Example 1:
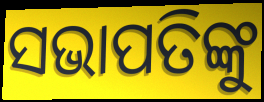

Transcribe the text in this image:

ସଭାପତିଙ୍କୁ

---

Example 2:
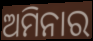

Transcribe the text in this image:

ଅମିନାର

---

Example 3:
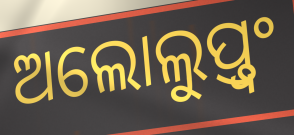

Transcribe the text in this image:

ଅଲୋଲୁପ୍ତ୍ୱଂ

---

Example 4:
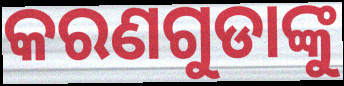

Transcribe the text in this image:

କରଣଗୁଡାଙ୍କୁ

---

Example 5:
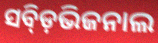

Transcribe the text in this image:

ସବ୍ଡ଼ିଭିଜନାଲ